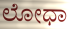
ಲೋಧಾ